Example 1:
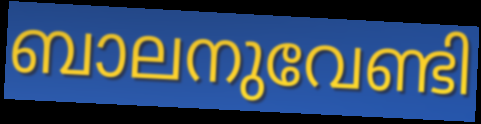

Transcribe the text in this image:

ബാലനുവേണ്ടി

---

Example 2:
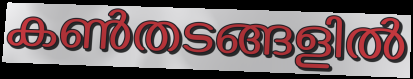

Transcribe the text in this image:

കൺതടങ്ങളിൽ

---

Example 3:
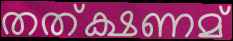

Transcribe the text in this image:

തത്ക്ഷണമ്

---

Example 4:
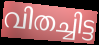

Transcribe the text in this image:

വിതച്ചിട്ട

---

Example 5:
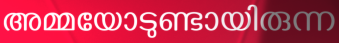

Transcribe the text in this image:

അമ്മയോടുണ്ടായിരുന്ന